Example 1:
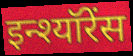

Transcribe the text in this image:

इन्श्यॉरेंस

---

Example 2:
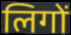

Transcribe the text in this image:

लिगों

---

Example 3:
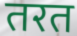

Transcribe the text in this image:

तरत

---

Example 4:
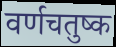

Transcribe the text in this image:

वर्णचतुष्क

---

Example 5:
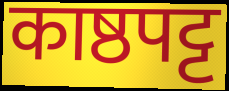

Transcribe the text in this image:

काष्ठपट्ट